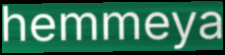
hemmeya